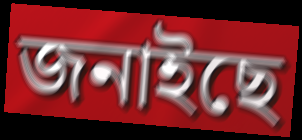
জনাইছে